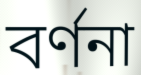
বৰ্ণনা